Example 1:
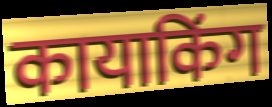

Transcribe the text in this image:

कायाकिंग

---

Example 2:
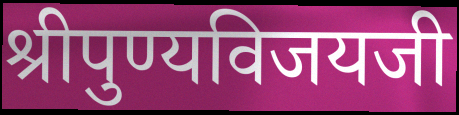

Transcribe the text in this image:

श्रीपुण्यविजयजी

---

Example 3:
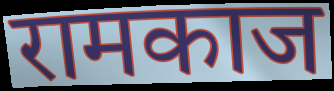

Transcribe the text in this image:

रामकाज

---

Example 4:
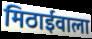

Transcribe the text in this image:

मिठाईवाला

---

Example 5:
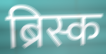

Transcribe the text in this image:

ब्रिस्क